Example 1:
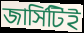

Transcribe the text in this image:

জার্সিটিই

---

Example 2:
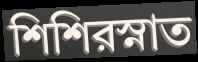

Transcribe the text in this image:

শিশিরস্নাত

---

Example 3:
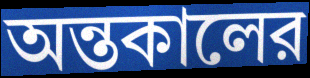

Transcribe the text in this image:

অন্তকালের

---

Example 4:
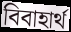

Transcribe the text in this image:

বিবাহার্থ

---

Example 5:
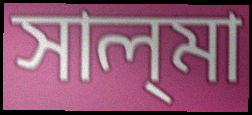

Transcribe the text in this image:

সাল্‌মা